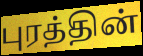
புரத்தின்